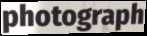
photograph